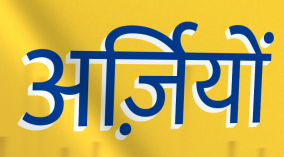
अर्ज़ियों